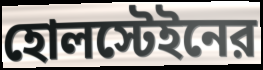
হোলস্টেইনের